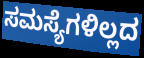
ಸಮಸ್ಯೆಗಳಿಲ್ಲದ